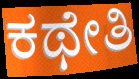
ಕಥೇತಿ